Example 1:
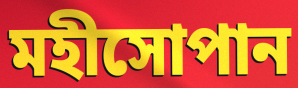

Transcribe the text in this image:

মহীসোপান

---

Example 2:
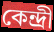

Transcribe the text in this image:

কেন্দ্রী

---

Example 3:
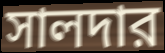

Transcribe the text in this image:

সালদার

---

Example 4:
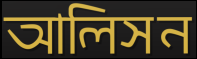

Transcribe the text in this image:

আলিসন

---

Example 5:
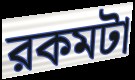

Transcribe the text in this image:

রকমটা